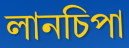
লানচিপা